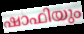
ഷാഫിയും